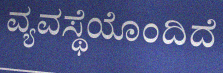
ವ್ಯವಸ್ಥೆಯೊಂದಿದೆ